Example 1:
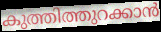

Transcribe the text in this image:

കുത്തിത്തുറക്കാൻ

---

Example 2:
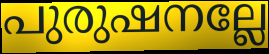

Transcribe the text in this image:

പുരുഷനല്ലേ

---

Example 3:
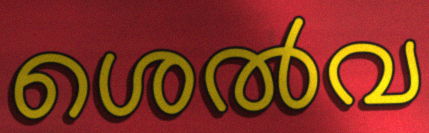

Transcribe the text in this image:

ശെൽവ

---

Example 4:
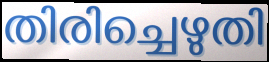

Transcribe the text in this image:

തിരിച്ചെഴുതി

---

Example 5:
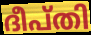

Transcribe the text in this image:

ദീപ്തി